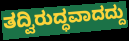
ತದ್ವಿರುದ್ಧವಾದದ್ದು